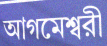
আগমেশ্বরী